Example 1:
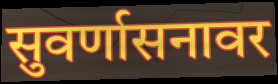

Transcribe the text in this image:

सुवर्णासनावर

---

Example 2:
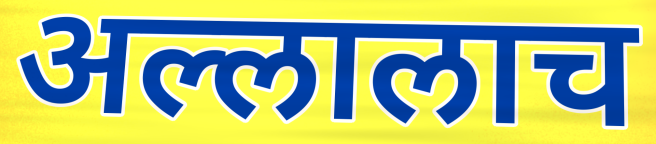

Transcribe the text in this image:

अल्लालाच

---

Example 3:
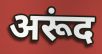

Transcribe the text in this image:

अरूंद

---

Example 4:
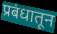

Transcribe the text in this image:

प्रबंधातून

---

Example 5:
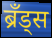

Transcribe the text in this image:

ब्रँड्स